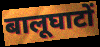
बालूघाटों